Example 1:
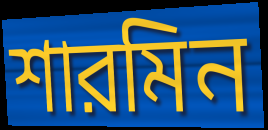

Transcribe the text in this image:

শারমিন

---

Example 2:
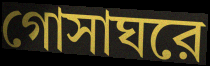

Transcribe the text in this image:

গোসাঘরে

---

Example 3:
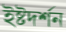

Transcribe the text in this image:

ইষ্টদর্শন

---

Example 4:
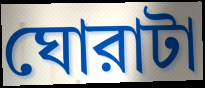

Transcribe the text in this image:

ঘোরাটা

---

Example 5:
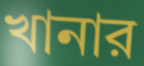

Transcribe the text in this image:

খানার